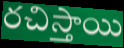
రచిస్తాయి